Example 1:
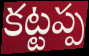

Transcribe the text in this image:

కట్టప్ప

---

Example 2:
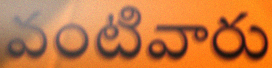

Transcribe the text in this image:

వంటివారు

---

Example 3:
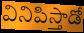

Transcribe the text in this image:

వినిపిస్తాడో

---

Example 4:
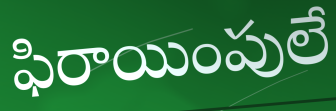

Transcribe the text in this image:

ఫిరాయింపులే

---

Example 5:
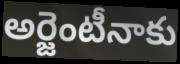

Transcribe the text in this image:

అర్జెంటీనాకు